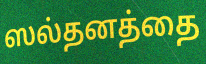
ஸல்தனத்தை